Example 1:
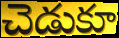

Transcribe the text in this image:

చెడుకూ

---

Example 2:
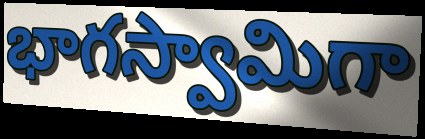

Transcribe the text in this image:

భాగస్వామిగా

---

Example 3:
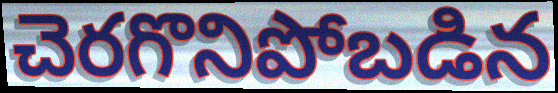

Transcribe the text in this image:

చెరగొనిపోబడిన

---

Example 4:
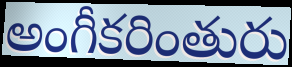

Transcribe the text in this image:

అంగీకరింతురు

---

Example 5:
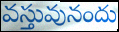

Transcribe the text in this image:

వస్తువునందు